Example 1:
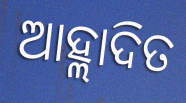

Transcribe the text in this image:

ଆହ୍ଲାଦିତ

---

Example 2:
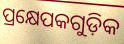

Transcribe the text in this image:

ପ୍ରକ୍ଷେପକଗୁଡ଼ିକ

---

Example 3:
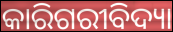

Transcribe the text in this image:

କାରିଗରୀବିଦ୍ୟା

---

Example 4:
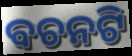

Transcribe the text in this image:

ବଚନଟି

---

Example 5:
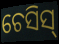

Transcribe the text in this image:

ଚେସିସ୍